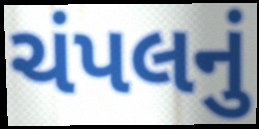
ચંપલનું